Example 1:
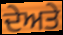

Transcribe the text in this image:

ਦੇਅਤੇ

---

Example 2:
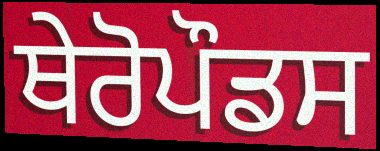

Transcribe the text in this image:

ਥੇਰੋਪੌਡਸ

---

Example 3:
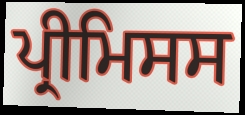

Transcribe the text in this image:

ਪ੍ਰੀਮਿਸਸ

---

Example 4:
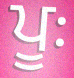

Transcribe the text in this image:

ਪੂਃ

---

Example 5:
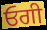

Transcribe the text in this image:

ਓਗੀ